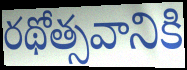
రథోత్సవానికి